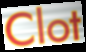
Clot